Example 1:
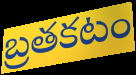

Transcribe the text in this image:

బ్రతకటం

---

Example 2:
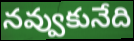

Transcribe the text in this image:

నవ్వుకునేది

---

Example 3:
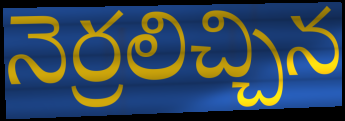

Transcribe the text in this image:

నెర్రలిచ్చిన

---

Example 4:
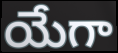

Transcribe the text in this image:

యేగా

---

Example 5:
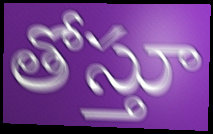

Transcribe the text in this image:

తోస్తూ